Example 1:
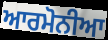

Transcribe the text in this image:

ਆਰਮੋਨੀਆ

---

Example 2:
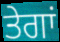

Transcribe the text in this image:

ਤੇਗਾਂ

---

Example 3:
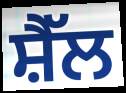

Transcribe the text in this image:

ਸ਼ੈੱਲ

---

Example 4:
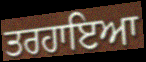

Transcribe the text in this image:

ਤਰਹਾਇਆ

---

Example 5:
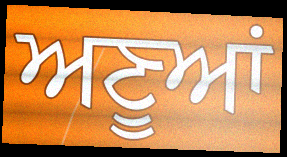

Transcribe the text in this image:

ਅਣੂਆਂ